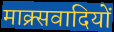
माक्र्सवादियों